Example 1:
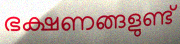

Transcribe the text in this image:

ഭക്ഷണങ്ങളുണ്ട്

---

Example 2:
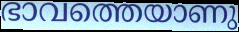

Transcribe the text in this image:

ഭാവത്തെയാണു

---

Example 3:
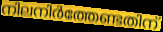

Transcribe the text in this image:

നിലനിർത്തേണ്ടതിന്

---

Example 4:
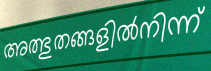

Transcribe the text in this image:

അത്ഭുതങ്ങളിൽനിന്ന്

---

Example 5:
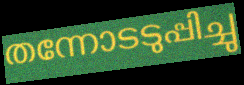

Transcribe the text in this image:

തന്നോടടുപ്പിച്ചു